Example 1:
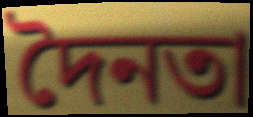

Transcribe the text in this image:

দৈনতা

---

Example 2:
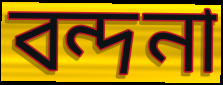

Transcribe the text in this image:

বন্দনা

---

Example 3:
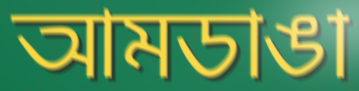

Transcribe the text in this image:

আমডাঙা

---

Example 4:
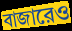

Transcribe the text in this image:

বাজারেও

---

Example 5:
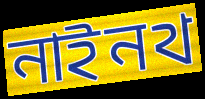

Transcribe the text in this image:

নাইনথ